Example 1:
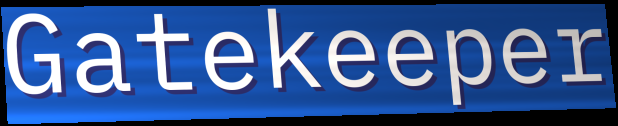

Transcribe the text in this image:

Gatekeeper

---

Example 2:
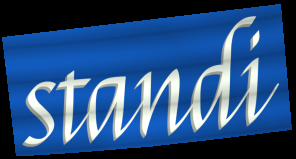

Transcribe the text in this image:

standi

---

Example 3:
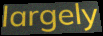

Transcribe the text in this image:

largely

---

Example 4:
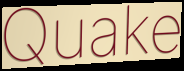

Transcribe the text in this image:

Quake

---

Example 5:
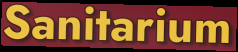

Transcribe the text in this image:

Sanitarium